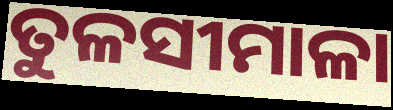
ତୁଳସୀମାଳା